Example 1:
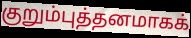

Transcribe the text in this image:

குறும்புத்தனமாகக்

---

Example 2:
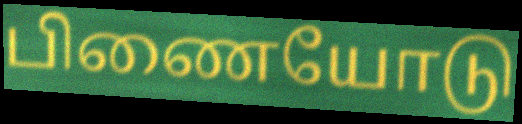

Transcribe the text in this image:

பிணையோடு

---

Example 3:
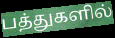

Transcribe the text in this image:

பத்துகளில்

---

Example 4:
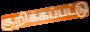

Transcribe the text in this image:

குறிக்கப்பட்டு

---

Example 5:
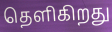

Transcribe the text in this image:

தெளிகிறது